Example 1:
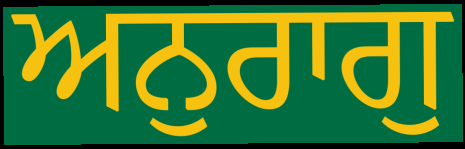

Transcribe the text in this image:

ਅਨੁਰਾਗੁ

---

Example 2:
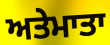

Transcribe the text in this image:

ਅਤੇਮਾਤਾ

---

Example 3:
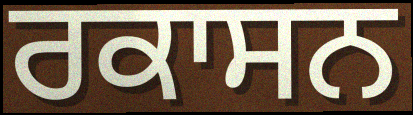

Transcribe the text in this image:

ਰਕਾਸਨ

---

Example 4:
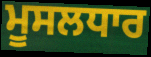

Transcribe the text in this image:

ਮੂਸਲਧਾਰ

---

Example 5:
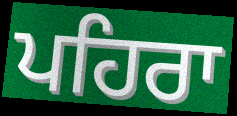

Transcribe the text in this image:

ਪਹਿਰਾ